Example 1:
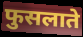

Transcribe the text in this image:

फुसलाते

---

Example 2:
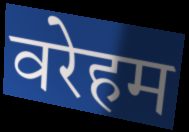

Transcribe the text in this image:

वरेहम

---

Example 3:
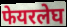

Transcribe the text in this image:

फेयरलेघ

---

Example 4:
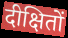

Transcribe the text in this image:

दीक्षितों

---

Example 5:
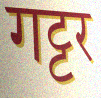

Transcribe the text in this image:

गट्टर